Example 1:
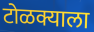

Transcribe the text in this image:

टोळक्याला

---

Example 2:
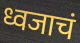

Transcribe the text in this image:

ध्वजाचं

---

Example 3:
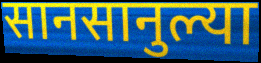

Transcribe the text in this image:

सानसानुल्या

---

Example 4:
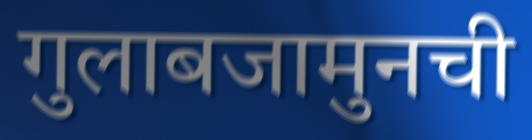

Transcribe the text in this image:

गुलाबजामुनची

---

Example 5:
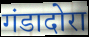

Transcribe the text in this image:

गंडादोरा